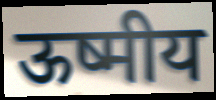
ऊष्मीय